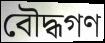
বৌদ্ধগণ